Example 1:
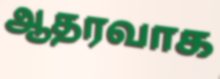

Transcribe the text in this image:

ஆதரவாக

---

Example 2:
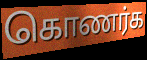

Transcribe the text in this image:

கொணர்க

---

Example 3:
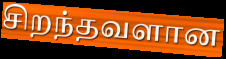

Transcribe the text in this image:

சிறந்தவளான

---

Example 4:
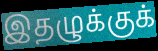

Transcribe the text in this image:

இதழுக்குக்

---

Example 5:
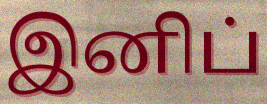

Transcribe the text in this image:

இனிப்